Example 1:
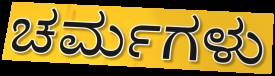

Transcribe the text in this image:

ಚರ್ಮಗಳು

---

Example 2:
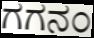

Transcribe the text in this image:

ಗಗನಂ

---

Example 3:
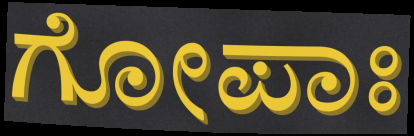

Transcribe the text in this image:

ಗೋಪಾಃ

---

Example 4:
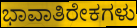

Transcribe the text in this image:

ಭಾವಾತಿರೇಕಗಳು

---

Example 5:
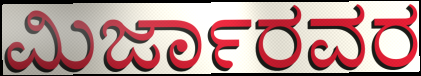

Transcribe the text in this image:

ಮಿರ್ಜಾರವರ